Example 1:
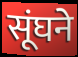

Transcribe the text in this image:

सूंघने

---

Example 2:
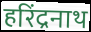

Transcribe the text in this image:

हरिंद्रनाथ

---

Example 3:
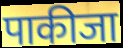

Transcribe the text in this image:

पाकीजा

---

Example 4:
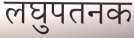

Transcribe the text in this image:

लघुपतनक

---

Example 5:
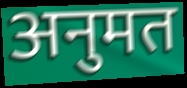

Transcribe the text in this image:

अनुमत